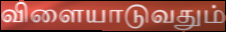
விளையாடுவதும்